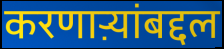
करणाऱ्‍यांबद्दल